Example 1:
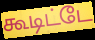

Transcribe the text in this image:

கூடிட்டே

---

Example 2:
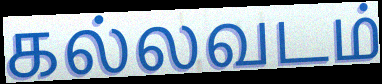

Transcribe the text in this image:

கல்லவடம்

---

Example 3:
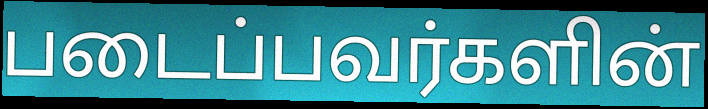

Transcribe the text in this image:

படைப்பவர்களின்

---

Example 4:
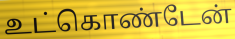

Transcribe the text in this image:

உட்கொண்டேன்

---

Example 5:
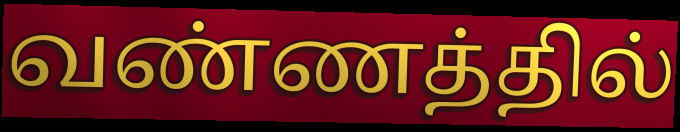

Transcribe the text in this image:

வண்ணத்தில்